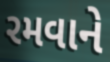
રમવાને